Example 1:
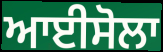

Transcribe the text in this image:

ਆਈਸੋਲਾ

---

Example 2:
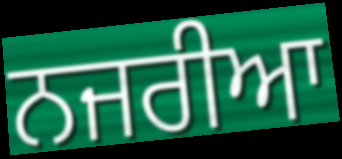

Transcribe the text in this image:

ਨਜਰੀਆ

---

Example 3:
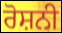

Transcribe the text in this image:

ਰੋਸ਼ਨੀ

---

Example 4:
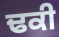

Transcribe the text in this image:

ਢਕੀ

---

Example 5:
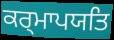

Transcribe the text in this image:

ਕਰ੍ਮਾਪਯਤਿ